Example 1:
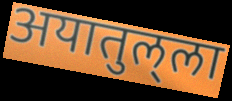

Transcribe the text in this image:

अयातुल्ला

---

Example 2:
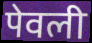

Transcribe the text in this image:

पेवली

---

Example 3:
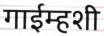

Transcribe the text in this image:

गाईम्हशी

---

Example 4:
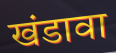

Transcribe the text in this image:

खंडावा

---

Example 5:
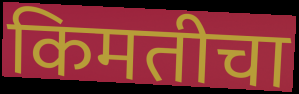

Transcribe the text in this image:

किमतीचा